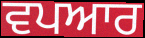
ਵਪਆਰ